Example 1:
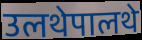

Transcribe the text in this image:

उलथेपालथे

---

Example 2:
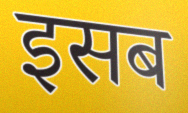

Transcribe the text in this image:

इसब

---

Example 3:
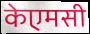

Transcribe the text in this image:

केएमसी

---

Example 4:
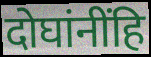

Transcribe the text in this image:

दोघांनींहि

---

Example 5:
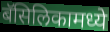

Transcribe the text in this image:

बॅसिलिकामध्ये